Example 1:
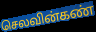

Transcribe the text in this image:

செலவின்கண்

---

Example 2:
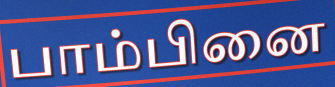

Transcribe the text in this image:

பாம்பினை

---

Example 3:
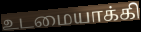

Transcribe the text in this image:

உடமையாக்கி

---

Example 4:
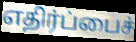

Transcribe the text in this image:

எதிர்ப்பைச்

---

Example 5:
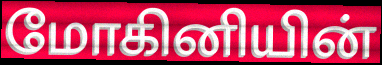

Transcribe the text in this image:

மோகினியின்